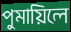
পুমায়িলে